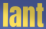
lant